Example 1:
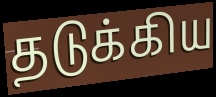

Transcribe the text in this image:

தடுக்கிய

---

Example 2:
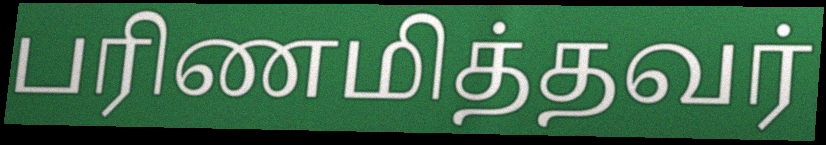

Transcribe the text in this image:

பரிணமித்தவர்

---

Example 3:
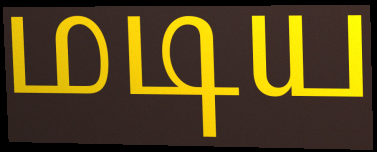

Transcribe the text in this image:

மடிய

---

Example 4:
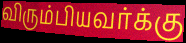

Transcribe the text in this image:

விரும்பியவர்க்கு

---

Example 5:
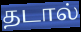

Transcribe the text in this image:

தடால்